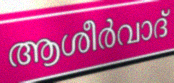
ആശീർവാദ്